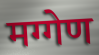
मग्गेण